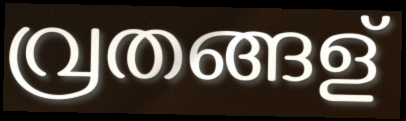
വ്രതങ്ങള്